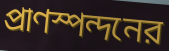
প্রাণস্পন্দনের